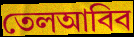
তেলআবিব